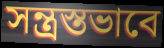
সন্ত্রস্তভাবে